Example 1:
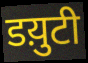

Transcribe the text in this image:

डय़ुटी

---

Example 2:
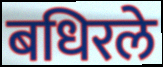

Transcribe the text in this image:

बधिरले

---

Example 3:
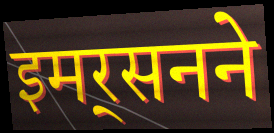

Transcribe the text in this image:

इमर्सनने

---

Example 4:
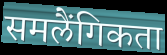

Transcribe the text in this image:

समलैंगिकता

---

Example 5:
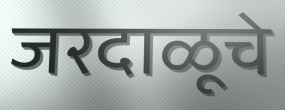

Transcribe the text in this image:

जरदाळूचे